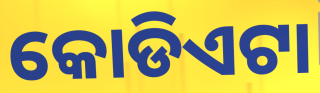
କୋଡିଏଟା